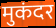
मुकंदर